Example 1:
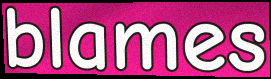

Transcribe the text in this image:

blames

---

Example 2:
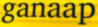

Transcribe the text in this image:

ganaap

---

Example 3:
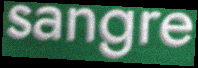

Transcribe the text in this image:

sangre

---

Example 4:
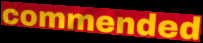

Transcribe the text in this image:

commended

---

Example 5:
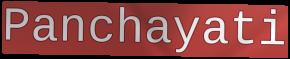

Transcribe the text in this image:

Panchayati